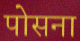
पोसना